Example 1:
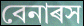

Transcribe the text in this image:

বেনাৰস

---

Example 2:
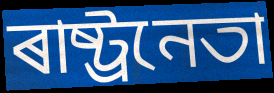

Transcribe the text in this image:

ৰাষ্ট্ৰনেতা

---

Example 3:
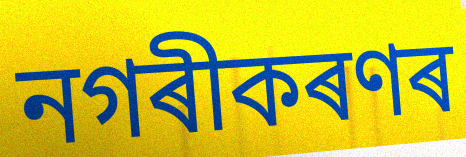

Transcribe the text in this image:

নগৰীকৰণৰ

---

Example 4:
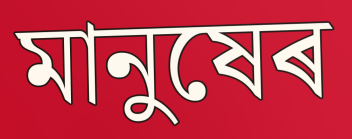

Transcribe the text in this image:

মানুষেৰ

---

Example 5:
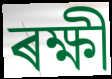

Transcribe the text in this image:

ৰক্ষী